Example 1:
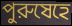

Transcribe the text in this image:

পুৰুষেহে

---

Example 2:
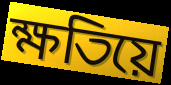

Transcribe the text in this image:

ক্ষতিয়ে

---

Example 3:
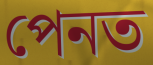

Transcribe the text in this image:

পেনত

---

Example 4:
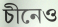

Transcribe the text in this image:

চীনেও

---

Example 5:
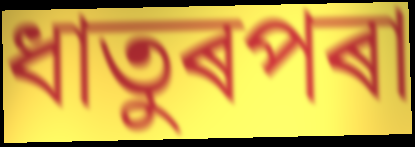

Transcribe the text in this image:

ধাতুৰপৰা